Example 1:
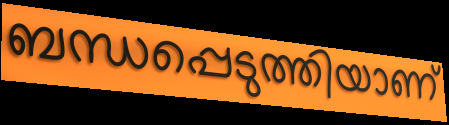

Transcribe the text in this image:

ബന്ധപ്പെടുത്തിയാണ്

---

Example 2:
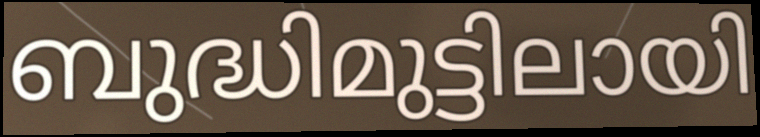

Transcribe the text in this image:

ബുദ്ധിമുട്ടിലായി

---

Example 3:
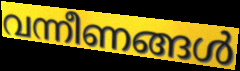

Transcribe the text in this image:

വന്നീണങ്ങൾ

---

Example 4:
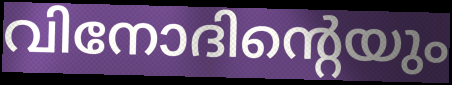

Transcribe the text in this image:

വിനോദിന്റെയും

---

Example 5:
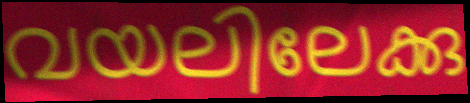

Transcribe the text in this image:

വയലിലേക്കു